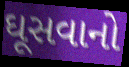
ઘૂસવાનો